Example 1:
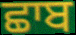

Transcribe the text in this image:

ਛਾਬ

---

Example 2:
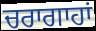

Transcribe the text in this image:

ਚਰਾਗਾਹਾਂ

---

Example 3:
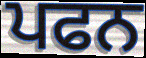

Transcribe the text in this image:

ਪਫਨ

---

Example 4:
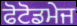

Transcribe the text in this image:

ਫੋਟੋਡਮੇਜ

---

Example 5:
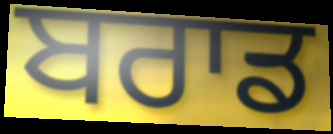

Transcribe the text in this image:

ਬਰਾਡ